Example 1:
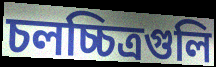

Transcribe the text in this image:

চলচ্চিত্রগুলি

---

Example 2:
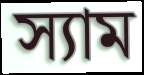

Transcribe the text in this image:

স্যাম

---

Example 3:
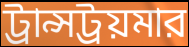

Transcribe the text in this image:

ট্রান্সট্রয়মার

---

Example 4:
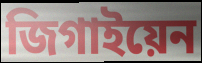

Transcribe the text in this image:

জিগাইয়েন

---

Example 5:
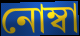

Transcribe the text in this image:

নোম্বা